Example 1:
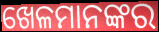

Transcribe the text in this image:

ଖେଳମାନଙ୍କର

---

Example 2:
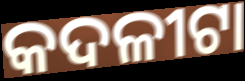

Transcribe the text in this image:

କଦଳୀଟା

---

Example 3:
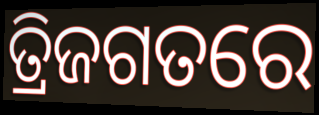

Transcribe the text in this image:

ତ୍ରିଜଗତରେ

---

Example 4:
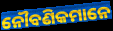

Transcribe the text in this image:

ନୌବଣିକମାନେ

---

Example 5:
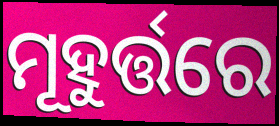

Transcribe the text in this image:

ମୂହୁର୍ତ୍ତରେ